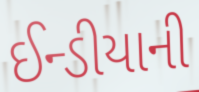
ઈન્ડીયાની